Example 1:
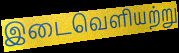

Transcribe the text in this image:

இடைவெளியற்று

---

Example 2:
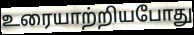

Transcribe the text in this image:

உரையாற்றியபோது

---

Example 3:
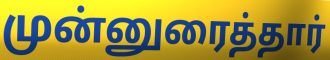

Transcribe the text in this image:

முன்னுரைத்தார்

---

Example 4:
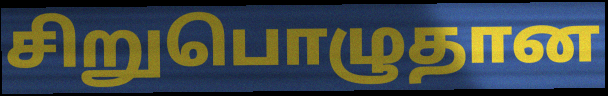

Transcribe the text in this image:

சிறுபொழுதான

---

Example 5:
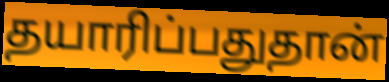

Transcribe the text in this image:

தயாரிப்பதுதான்